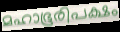
മഹാഭൂരിപക്ഷം